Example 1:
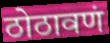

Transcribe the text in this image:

ठोठावणं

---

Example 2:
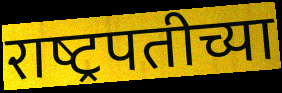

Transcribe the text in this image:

राष्ट्रपतीच्या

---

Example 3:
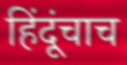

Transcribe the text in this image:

हिंदूंचाच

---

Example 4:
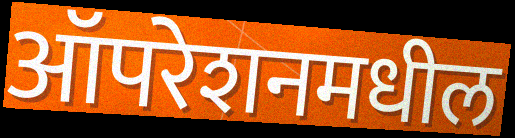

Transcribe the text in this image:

ऑपरेशनमधील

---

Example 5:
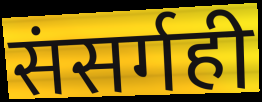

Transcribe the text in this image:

संसर्गही